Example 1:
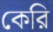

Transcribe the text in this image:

কেরি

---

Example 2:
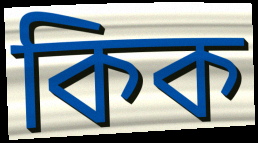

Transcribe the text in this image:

কিক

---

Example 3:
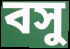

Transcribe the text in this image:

বসু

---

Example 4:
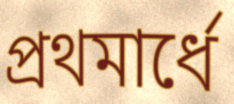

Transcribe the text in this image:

প্রথমার্ধে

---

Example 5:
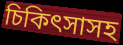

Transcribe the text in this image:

চিকিৎসাসহ